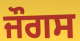
ਜੌਗਸ